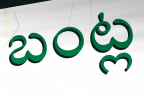
బంట్ల